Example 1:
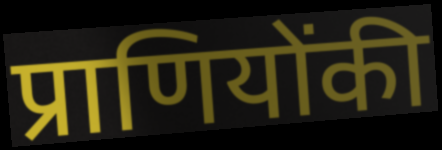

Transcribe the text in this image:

प्राणियोंकी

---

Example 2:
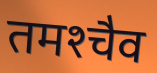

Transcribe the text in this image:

तमश्चैव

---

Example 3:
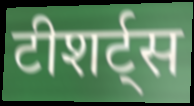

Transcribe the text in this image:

टीशर्ट्स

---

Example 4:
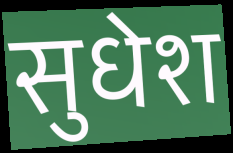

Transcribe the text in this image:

सुधेश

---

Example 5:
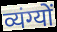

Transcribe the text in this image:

व्यंग्यों